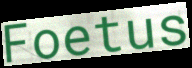
Foetus